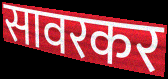
सावरकर